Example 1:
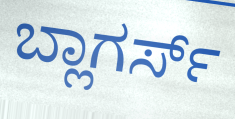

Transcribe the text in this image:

ಬ್ಲಾಗರ್ಸ್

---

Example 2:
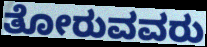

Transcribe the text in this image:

ತೋರುವವರು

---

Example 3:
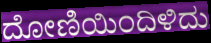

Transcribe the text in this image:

ದೋಣಿಯಿಂದಿಳಿದು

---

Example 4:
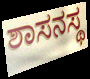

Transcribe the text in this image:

ಶಾಸನಸ್ಥ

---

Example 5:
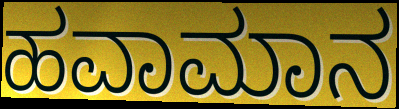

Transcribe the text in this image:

ಹವಾಮಾನ